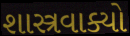
શાસ્ત્રવાક્યો